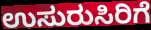
ಉಸುರುಸಿರಿಗೆ